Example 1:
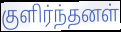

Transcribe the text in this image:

குளிர்ந்தனள்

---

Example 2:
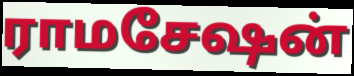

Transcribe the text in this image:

ராமசேஷன்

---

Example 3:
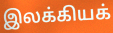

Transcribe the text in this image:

இலக்கியக்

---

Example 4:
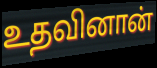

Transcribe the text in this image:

உதவினான்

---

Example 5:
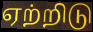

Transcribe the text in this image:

ஏற்றிடு